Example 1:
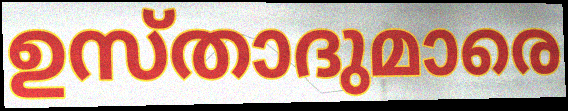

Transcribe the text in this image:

ഉസ്താദുമാരെ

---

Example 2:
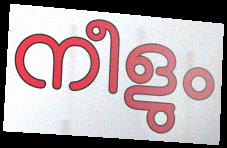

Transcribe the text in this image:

നീളും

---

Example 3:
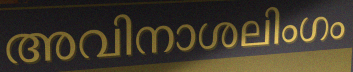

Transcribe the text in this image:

അവിനാശലിംഗം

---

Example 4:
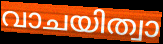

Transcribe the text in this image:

വാചയിത്വാ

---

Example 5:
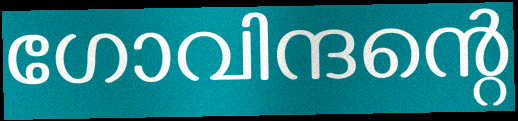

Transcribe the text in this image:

ഗോവിന്ദന്റെ